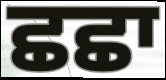
ਛਛਾ